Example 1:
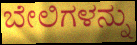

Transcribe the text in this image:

ಬೇಲಿಗಳನ್ನು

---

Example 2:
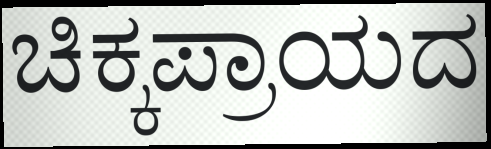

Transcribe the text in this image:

ಚಿಕ್ಕಪ್ರಾಯದ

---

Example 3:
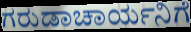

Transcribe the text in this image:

ಗರುಡಾಚಾರ್ಯನಿಗೆ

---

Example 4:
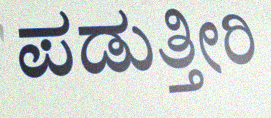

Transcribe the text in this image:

ಪಡುತ್ತೀರಿ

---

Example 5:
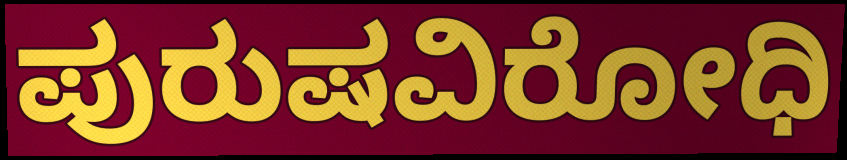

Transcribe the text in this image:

ಪುರುಷವಿರೋಧಿ